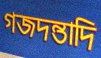
গজদন্তাদি